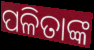
ପଳିତାଙ୍କ